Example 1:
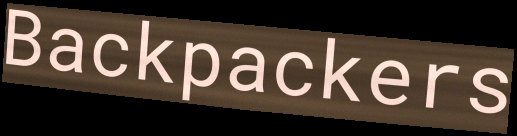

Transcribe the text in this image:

Backpackers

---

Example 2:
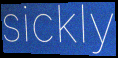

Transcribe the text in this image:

sickly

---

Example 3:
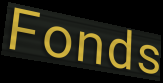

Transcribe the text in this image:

Fonds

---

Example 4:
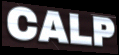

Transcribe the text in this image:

CALP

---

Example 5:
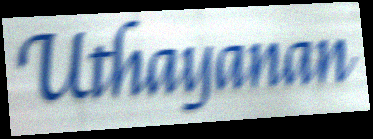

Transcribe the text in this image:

Uthayanan